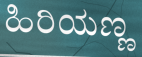
ಹಿರಿಯಣ್ಣ